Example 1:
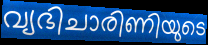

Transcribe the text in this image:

വ്യഭിചാരിണിയുടെ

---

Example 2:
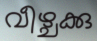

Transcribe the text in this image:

വീഴ്ചക്കു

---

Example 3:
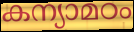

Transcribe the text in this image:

കന്യാമഠം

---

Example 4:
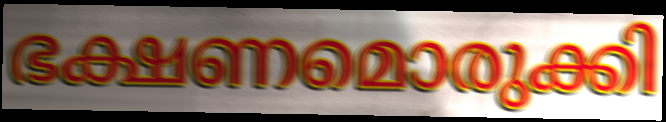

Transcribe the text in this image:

ഭക്ഷണമൊരുക്കി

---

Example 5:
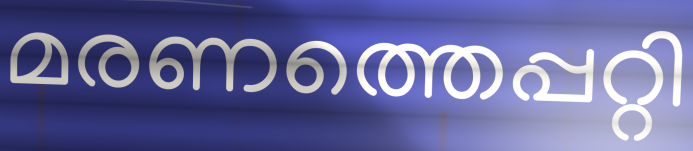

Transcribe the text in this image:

മരണത്തെപ്പറ്റി